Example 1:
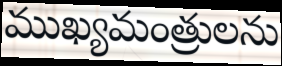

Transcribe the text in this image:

ముఖ్యమంత్రులను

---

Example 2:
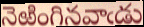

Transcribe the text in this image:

నెఱింగినవాఁడు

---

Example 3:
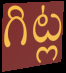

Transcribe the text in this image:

గిట్ల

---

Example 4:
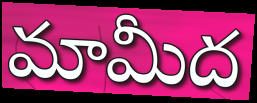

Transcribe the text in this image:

మామీద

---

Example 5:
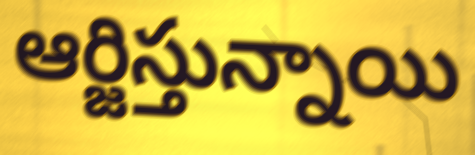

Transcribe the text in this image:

ఆర్జిస్తున్నాయి